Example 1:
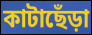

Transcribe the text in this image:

কাটাছেঁড়া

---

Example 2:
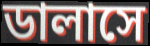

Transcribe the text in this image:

ডালাসে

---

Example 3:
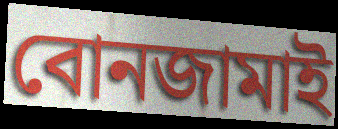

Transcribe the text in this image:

বোনজামাই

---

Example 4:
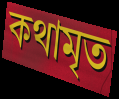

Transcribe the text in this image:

কথামৃত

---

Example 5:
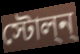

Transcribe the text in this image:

স্টোল্ন্